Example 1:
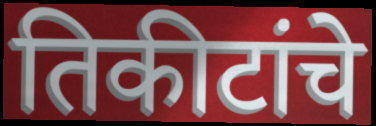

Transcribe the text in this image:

तिकीटांचे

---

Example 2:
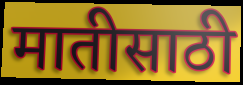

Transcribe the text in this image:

मातीसाठी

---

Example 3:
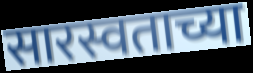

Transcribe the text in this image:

सारस्वताच्या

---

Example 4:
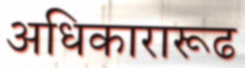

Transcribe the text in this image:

अधिकारारूढ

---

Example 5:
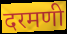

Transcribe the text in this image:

दरमणी